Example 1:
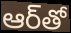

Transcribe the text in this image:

ఆర్‌తో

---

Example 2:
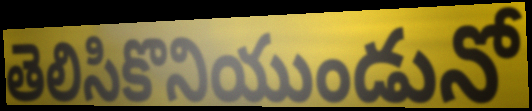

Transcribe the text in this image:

తెలిసికొనియుండునో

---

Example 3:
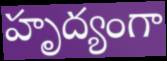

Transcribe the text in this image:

హృద్యంగా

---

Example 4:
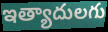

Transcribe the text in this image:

ఇత్యాదులగు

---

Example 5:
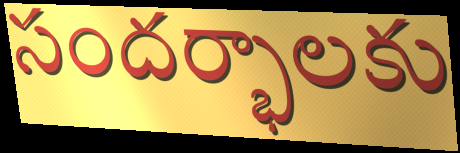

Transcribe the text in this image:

సందర్భాలకు